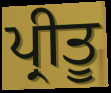
ਪ੍ਰੀਤੂ